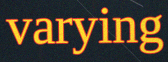
varying